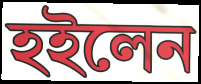
হইলেন